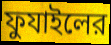
ফুযাইলের